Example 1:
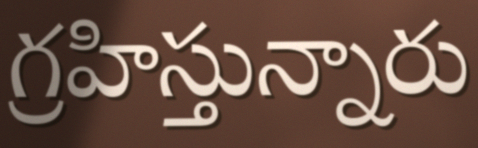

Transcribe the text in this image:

గ్రహిస్తున్నారు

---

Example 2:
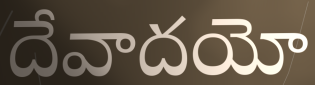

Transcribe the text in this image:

దేవాదయో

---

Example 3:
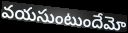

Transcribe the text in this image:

వయసుంటుందేమో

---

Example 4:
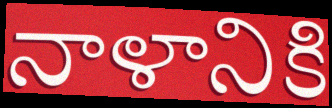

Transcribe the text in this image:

నాళానికి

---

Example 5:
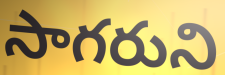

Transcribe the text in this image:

సాగరుని